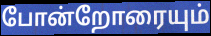
போன்றோரையும்